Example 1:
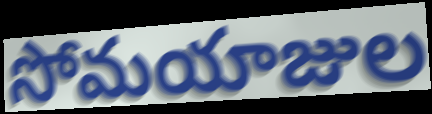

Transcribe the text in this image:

సోమయాజుల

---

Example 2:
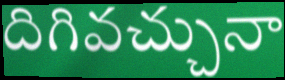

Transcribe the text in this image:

దిగివచ్చునా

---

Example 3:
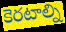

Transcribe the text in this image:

కెరటాల్ని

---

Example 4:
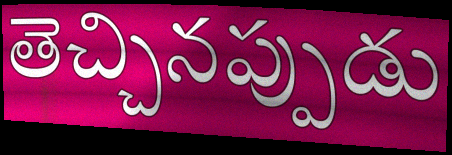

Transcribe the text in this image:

తెచ్చినప్పుడు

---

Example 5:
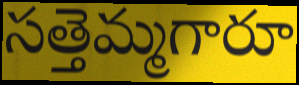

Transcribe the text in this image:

సత్తెమ్మగారూ